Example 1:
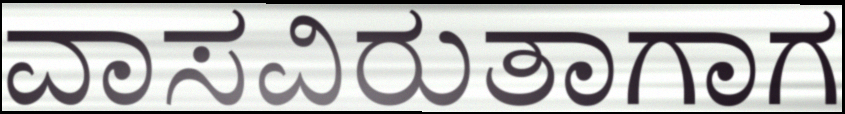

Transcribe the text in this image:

ವಾಸವಿರುತಾಗಾಗ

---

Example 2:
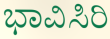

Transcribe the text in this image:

ಭಾವಿಸಿರಿ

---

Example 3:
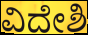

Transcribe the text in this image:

ವಿದೇಶಿ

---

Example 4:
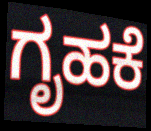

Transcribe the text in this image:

ಗೃಹಕೆ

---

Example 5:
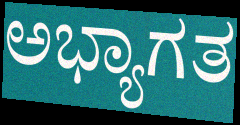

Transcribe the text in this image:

ಅಭ್ಯಾಗತ